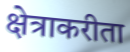
क्षेत्राकरीता